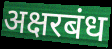
अक्षरबंध